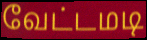
வேட்டமடி